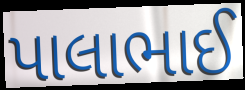
પાલાભાઈ